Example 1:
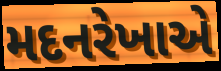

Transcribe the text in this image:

મદનરેખાએ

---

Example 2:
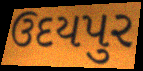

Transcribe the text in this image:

ઉદયપુર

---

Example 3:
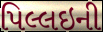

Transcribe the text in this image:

પિલ્લઇની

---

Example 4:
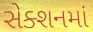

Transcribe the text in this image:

સેક્શનમાં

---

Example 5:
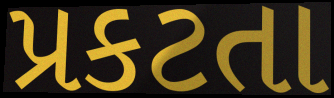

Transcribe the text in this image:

પ્રકટતા